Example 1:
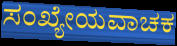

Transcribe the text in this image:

ಸಂಖ್ಯೇಯವಾಚಕ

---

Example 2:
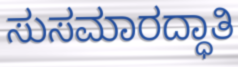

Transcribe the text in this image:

ಸುಸಮಾರದ್ಧಾತಿ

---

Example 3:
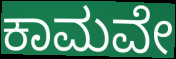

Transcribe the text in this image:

ಕಾಮವೇ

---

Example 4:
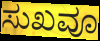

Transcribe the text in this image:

ಸುಖವೂ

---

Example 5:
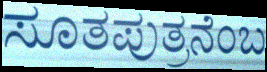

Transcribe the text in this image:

ಸೂತಪುತ್ರನೆಂಬ